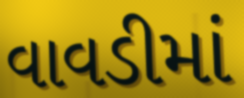
વાવડીમાં